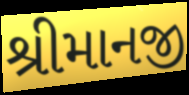
શ્રીમાનજી